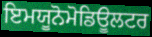
ਇਮਯੂਨੋਮੋਡਿਊਲਟਰ